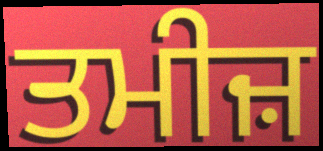
ਤਮੀਜ਼